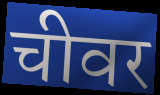
चीवर